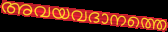
അവയവദാനത്തെ